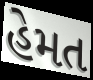
હેમત